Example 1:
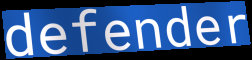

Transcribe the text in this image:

defender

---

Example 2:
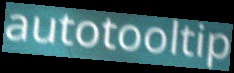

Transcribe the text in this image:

autotooltip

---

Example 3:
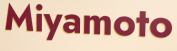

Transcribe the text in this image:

Miyamoto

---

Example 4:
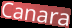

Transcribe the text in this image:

Canara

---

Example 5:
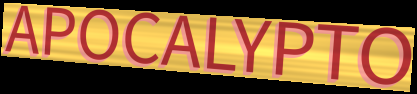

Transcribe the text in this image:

APOCALYPTO